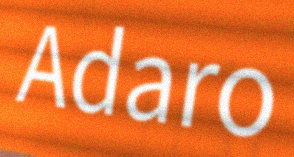
Adaro